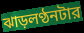
ঝাড়লণ্ঠনটার